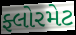
ફ્લોરમેટ